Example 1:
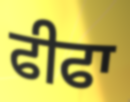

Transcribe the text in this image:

ਫੀਫਾ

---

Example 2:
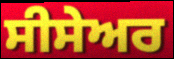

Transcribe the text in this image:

ਸੀਸੇਅਰ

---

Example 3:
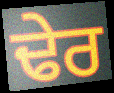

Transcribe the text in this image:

ਢੇਰ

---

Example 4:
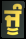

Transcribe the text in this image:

ਜੂੰ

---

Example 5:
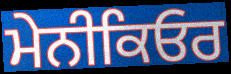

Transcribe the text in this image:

ਮੇਨੀਕਿਓਰ